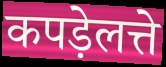
कपड़ेलत्ते